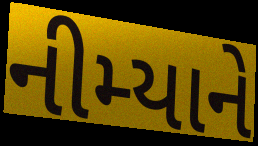
નીમ્યાને